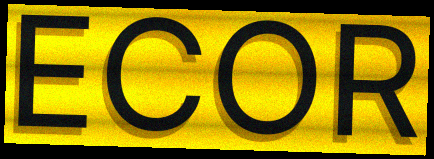
ECOR